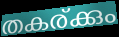
തകര്ക്കും